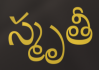
స్మృతీ